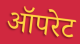
ऑपरेट